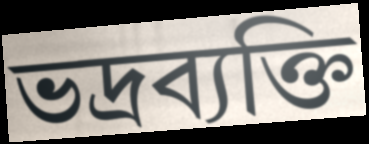
ভদ্রব্যক্তি